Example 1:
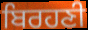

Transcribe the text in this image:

ਬਿਰਹਣੀ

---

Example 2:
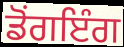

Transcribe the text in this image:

ਡੋਂਗਇੰਗ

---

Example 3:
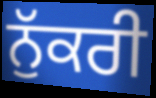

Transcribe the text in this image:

ਨੁੱਕਰੀ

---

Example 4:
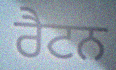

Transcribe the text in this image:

ਰੈਟਨ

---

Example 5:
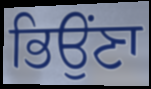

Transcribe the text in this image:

ਭਿਉਂਣਾ